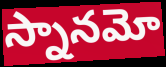
స్నానమో